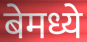
बेमध्ये